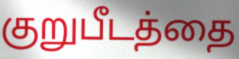
குறுபீடத்தை